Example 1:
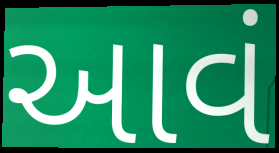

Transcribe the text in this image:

આવં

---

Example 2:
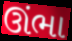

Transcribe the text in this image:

ઊંભા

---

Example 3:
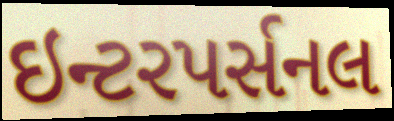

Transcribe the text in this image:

ઇન્ટરપર્સનલ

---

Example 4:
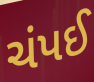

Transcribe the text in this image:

ચંપઈ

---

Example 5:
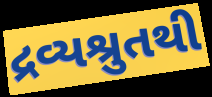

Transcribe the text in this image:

દ્રવ્યશ્રુતથી